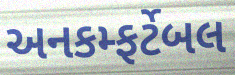
અનકમ્ફર્ટેબલ